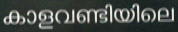
കാളവണ്ടിയിലെ